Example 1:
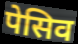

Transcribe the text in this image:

पेसिव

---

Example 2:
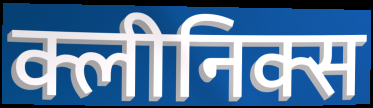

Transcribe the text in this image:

क्लीनिक्स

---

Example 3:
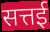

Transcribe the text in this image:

सत्तई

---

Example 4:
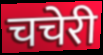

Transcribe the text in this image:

चचेरी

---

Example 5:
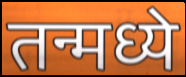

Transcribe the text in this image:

तन्मध्ये